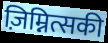
ज़िम्नित्सकी